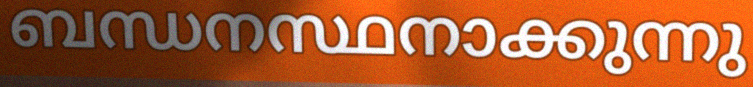
ബന്ധനസ്ഥനാക്കുന്നു